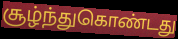
சூழ்ந்துகொண்டது